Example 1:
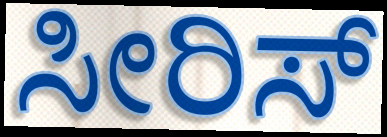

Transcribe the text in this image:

ಸೀರಿಸ್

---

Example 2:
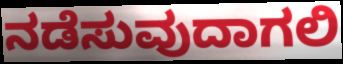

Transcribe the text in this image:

ನಡೆಸುವುದಾಗಲಿ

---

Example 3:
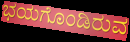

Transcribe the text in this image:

ಭಯಗೊಂಡಿರುವ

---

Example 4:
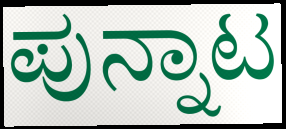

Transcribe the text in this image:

ಪುನ್ನಾಟ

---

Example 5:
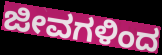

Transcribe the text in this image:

ಜೀವಗಳಿಂದ